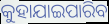
କୁହାଯାଇପାରିବ